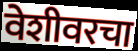
वेशीवरचा